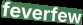
feverfew